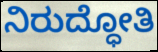
ನಿರುದ್ಧೋತಿ